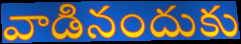
వాడినందుకు